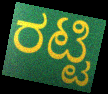
ರಟ್ಟಿ